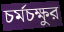
চর্মচক্ষুর